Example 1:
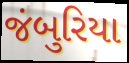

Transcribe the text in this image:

જંબુરિયા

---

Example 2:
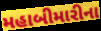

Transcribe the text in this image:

મહાબીમારીના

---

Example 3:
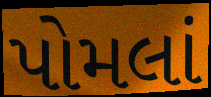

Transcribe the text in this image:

પોમલાં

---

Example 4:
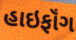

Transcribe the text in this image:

હાઇફૉંગ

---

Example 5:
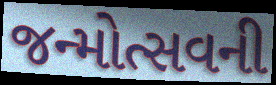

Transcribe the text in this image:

જન્મોત્સવની